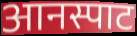
आनस्पाट